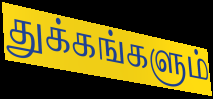
துக்கங்களும்